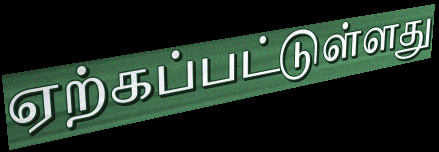
ஏற்கப்பட்டுள்ளது